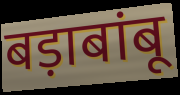
बड़ाबांबू